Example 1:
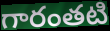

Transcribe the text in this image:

గారంతటి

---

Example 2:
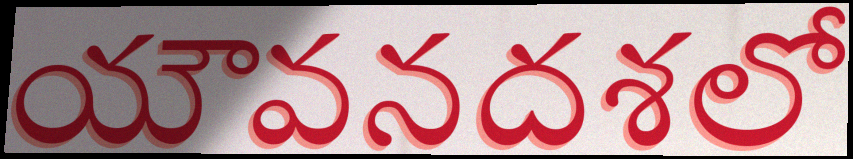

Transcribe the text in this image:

యౌవనదశలో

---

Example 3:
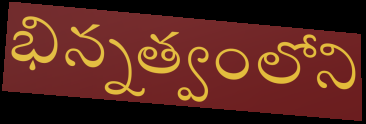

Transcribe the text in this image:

భిన్నత్వంలోని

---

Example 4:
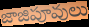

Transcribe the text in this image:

జాజిపూవులు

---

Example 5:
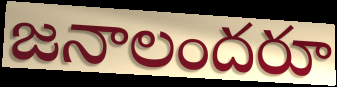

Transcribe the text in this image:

జనాలందరూ